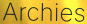
Archies